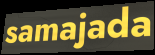
samajada